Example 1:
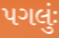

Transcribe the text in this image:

પગલુંઃ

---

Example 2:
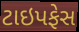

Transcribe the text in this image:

ટાઇપફેસ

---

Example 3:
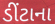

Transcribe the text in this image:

ડીંટાના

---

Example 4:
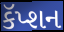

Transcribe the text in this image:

કૅપ્શન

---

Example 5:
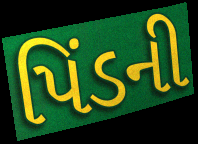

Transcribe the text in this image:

પિંડની